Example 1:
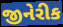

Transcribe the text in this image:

જીનેરીક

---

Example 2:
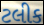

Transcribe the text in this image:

ટલીક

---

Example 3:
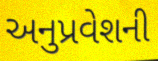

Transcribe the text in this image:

અનુપ્રવેશની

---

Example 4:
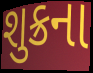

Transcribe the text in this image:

શુક્રના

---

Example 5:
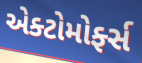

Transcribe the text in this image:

એક્ટોમોર્ફ્સ